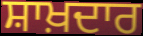
ਸ਼ਾਖ਼ਦਾਰ